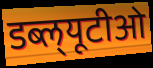
डब्ल्यूटीओ